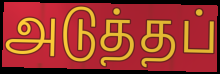
அடுத்தப்